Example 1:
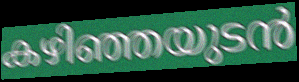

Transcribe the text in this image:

കഴിഞ്ഞയുടൻ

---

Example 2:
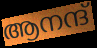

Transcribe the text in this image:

ആനന്ദ്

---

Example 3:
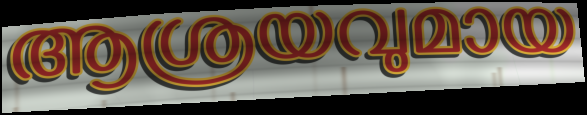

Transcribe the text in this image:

ആശ്രയവുമായ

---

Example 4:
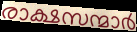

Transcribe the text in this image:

രാക്ഷസന്മാർ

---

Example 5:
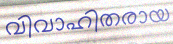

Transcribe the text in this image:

വിവാഹിതരായ